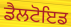
ਡੈਲਟੋਇਡ